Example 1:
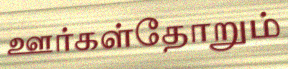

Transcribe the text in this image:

ஊர்கள்தோறும்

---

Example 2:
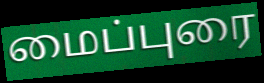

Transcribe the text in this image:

மைப்புரை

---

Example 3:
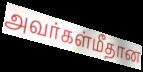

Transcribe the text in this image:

அவர்கள்மீதான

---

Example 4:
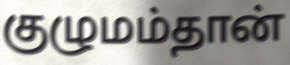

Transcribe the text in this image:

குழுமம்தான்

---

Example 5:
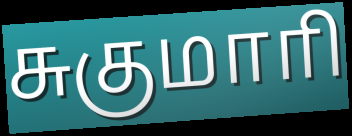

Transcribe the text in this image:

சுகுமாரி